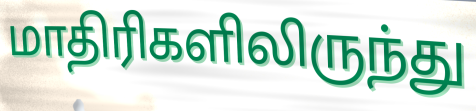
மாதிரிகளிலிருந்து